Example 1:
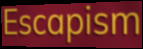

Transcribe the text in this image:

Escapism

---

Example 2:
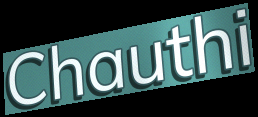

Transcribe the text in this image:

Chauthi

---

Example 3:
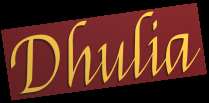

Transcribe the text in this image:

Dhulia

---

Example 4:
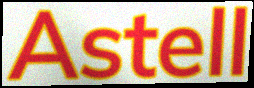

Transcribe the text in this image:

Astell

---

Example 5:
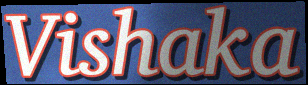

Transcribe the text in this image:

Vishaka